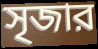
সৃজার